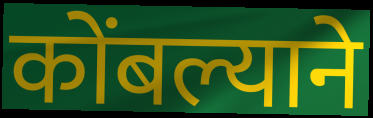
कोंबल्याने